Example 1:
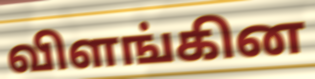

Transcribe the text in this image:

விளங்கின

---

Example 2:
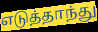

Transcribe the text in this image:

எடுத்தாந்து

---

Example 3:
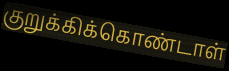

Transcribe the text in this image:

குறுக்கிக்கொண்டாள்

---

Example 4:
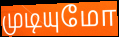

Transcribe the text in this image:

முடியுமோ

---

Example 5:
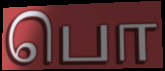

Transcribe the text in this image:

பொ